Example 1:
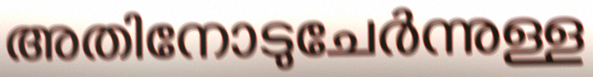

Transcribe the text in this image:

അതിനോടുചേർന്നുള്ള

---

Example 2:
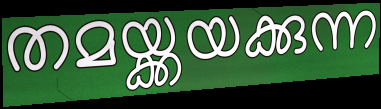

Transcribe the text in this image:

തമയ്ക്കയക്കുന്ന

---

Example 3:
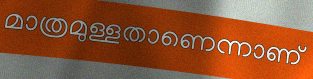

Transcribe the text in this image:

മാത്രമുള്ളതാണെന്നാണ്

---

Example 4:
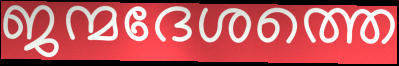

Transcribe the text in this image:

ജന്മദേശത്തെ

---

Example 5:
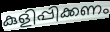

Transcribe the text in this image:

കുളിപ്പിക്കണം